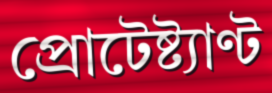
প্রোটেষ্ট্যাণ্ট